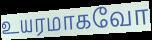
உயரமாகவோ